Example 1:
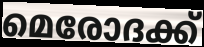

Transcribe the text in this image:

മെരോദക്ക്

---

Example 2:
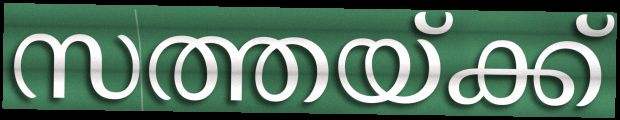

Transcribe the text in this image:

സത്തയ്ക്ക്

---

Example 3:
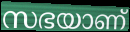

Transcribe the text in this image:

സഭയാണ്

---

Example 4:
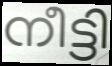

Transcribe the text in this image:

നീട്ടി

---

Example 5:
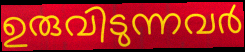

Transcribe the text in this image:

ഉരുവിടുന്നവർ